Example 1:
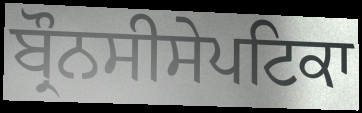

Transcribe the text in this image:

ਬ੍ਰੌਨਸੀਸੇਪਟਿਕਾ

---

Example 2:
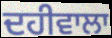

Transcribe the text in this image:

ਦਹੀਵਾਲਾ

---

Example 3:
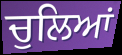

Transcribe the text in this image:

ਚੁਲਿਆਂ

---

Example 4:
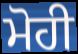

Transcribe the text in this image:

ਮੋਹੀ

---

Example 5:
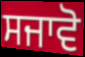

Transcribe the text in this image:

ਸਜਾਵੋ